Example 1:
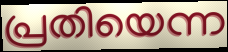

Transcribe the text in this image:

പ്രതിയെന്ന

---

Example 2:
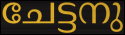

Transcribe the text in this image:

ചേട്ടനു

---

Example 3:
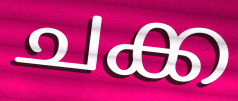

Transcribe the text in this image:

ചക്ക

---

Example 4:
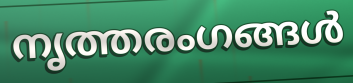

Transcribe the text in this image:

നൃത്തരംഗങ്ങൾ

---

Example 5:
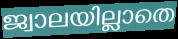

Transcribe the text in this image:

ജ്വാലയില്ലാതെ